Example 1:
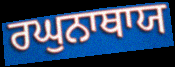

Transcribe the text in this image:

ਰਘੁਨਾਥਾਯ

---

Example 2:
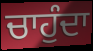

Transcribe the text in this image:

ਚਾਹੁੰਦਾ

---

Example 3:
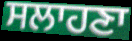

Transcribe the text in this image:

ਸਲਾਹਣਾ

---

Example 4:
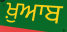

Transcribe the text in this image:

ਖ਼ੁਆਬ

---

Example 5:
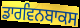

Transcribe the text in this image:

ਡਾਰਵਿਨਬਾਕਸ